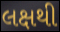
લક્ષથી